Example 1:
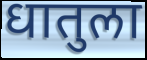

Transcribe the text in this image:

धातुला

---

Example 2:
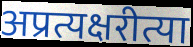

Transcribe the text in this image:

अप्रत्यक्षरीत्या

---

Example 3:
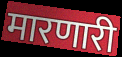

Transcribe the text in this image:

मारणारी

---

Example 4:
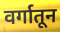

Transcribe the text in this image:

वर्गातून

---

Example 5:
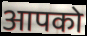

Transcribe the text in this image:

आपको